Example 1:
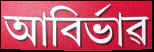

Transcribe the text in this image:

আবিৰ্ভাৱ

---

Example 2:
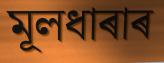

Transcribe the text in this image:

মূলধাৰাৰ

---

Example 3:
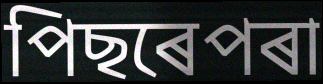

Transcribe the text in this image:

পিছৰেপৰা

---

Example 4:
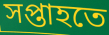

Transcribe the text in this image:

সপ্তাহতে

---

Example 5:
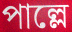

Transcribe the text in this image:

পাল্লে